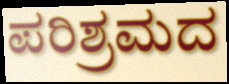
ಪರಿಶ್ರಮದ